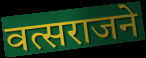
वत्सराजने